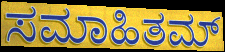
ಸಮಾಹಿತಮ್